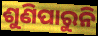
ଶୁଣିପାରୁନି